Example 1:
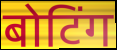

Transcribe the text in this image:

बोटिंग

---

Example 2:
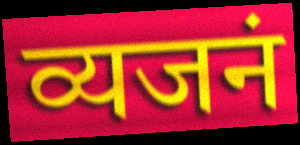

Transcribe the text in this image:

व्यजनं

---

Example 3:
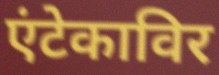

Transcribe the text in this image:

एंटेकाविर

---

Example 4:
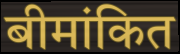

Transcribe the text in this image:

बीमांकित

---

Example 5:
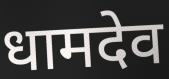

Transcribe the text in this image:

धामदेव